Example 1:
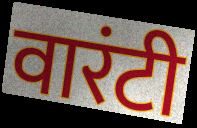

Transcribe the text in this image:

वारंटी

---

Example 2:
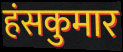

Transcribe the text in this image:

हंसकुमार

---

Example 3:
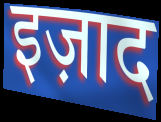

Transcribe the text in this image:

इज़ाद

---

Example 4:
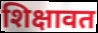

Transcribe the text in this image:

शिक्षावत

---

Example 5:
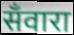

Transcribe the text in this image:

सँवारा